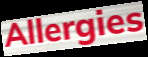
Allergies